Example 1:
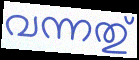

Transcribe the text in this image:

വന്നതു്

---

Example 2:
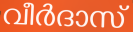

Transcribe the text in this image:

വീർദാസ്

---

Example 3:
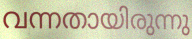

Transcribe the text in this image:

വന്നതായിരുന്നു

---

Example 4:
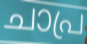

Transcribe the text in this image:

ചാപ്ര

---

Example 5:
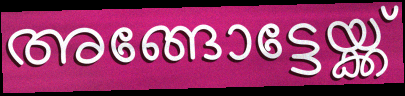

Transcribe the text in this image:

അങ്ങോട്ടേയ്ക്ക്